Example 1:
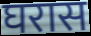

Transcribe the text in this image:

घरास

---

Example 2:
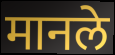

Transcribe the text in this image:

मानले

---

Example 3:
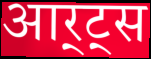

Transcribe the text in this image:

आर्ट्स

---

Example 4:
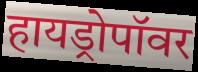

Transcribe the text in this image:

हायड्रोपॉवर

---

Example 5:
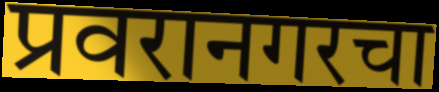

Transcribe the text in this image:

प्रवरानगरचा